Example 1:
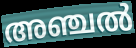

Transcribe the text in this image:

അഞ്ചൽ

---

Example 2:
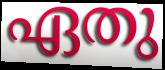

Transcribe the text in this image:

ഏതു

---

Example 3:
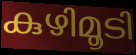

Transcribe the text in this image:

കുഴിമൂടി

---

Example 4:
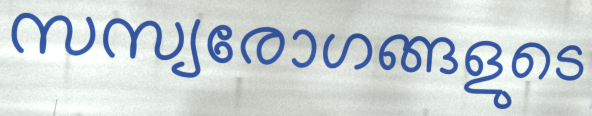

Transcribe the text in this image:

സസ്യരോഗങ്ങളുടെ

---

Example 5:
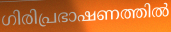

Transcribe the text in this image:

ഗിരിപ്രഭാഷണത്തിൽ